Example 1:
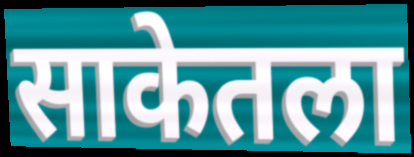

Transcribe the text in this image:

साकेतला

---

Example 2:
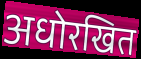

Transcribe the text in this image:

अधोरखित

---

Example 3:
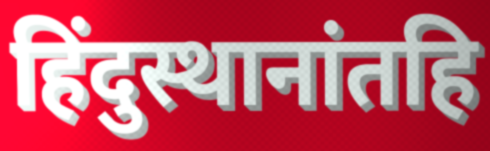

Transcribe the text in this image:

हिंदुस्थानांतहि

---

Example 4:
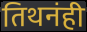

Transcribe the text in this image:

तिथनंही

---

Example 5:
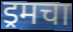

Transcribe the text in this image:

ड्रमचा